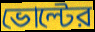
ভোল্টের